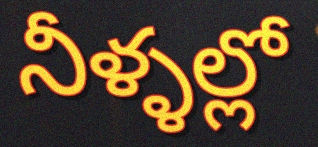
నీళ్ళల్లో